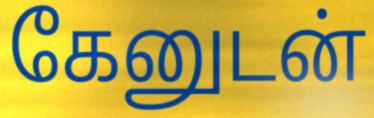
கேனுடன்